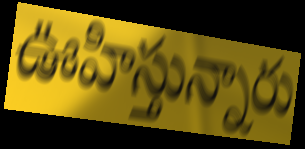
ఊహిస్తున్నారు